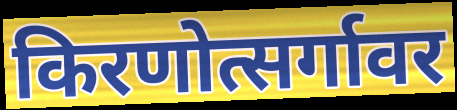
किरणोत्सर्गावर